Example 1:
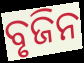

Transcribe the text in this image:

ବୃଜିନ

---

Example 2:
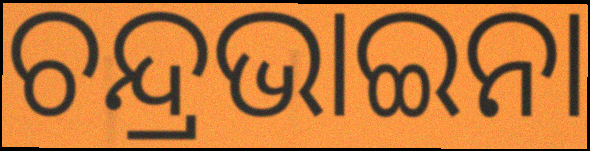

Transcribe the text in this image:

ଚନ୍ଦ୍ରଭାଇନା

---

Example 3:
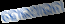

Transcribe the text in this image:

ହୋଇଥାଉନା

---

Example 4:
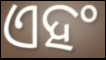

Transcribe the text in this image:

ଏହଂ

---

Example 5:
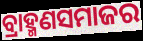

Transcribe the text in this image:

ବ୍ରାହ୍ମଣସମାଜର